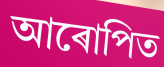
আৰোপিত